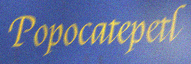
Popocatepetl